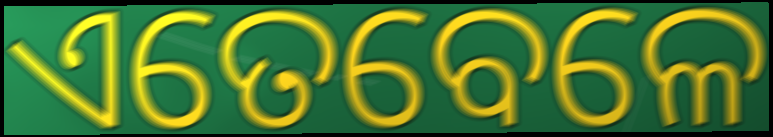
ଏତେବେଳେ